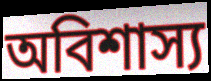
অবিশাস্য